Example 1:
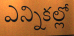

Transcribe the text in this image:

ఎన్నికల్లో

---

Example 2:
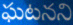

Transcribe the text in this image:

ఘటనని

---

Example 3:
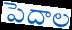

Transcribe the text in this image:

పెదాల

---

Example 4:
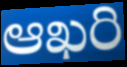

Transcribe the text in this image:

ఆఖరి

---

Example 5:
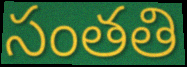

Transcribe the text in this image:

సంతతి